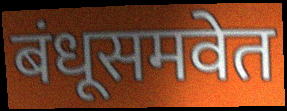
बंधूसमवेत